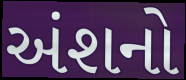
અંશનો